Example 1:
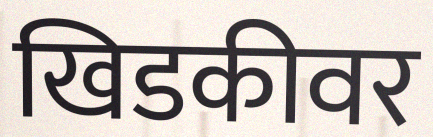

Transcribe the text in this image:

खिडकीवर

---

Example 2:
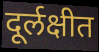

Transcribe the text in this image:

दूर्लक्षीत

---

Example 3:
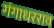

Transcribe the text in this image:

गंगाधरराव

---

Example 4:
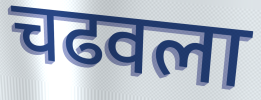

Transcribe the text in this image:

चढवला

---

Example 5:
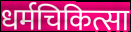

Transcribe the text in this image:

धर्मचिकित्सा